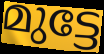
മുട്ടേ